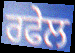
ਰਫੇਲ